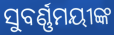
ସୁବର୍ଣ୍ଣମୟୀଙ୍କ